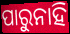
ପାରୁନାହି